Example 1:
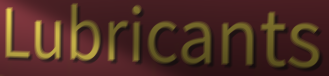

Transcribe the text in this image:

Lubricants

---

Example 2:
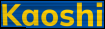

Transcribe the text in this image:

Kaoshi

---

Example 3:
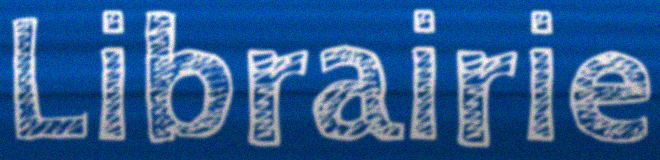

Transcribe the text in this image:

Librairie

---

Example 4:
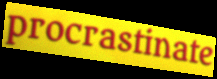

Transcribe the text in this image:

procrastinate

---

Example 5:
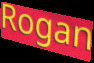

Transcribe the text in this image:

Rogan